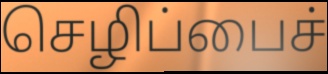
செழிப்பைச்